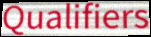
Qualifiers